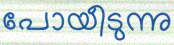
പോയീടുന്നു